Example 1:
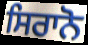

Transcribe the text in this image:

ਸਿਰਾਨੋ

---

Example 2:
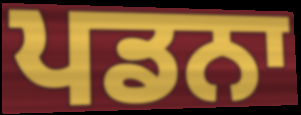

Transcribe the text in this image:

ਪਡਨਾ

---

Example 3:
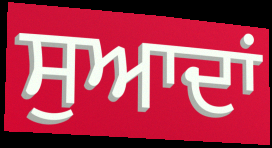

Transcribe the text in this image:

ਸੁਆਦਾਂ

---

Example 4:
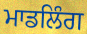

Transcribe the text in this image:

ਮਾਡਲਿੰਗ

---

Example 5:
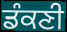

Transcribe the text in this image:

ਡੰਕਣੀ